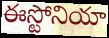
ఈస్టోనియా